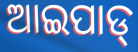
ଆଇପାଡ୍